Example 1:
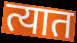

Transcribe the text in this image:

त्यात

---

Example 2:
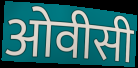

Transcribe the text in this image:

ओवीसी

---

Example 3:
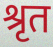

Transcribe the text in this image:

श्रृत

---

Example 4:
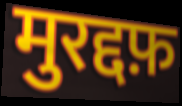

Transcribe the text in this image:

मुरद्दफ़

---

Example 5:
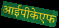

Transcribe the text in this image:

आईपीकेएफ